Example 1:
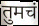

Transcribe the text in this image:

तुमचं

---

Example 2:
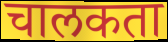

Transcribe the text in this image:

चालकता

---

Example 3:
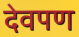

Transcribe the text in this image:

देवपण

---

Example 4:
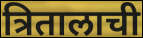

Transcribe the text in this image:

त्रितालाची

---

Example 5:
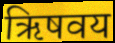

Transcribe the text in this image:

ऋिषवय